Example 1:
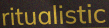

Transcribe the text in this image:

ritualistic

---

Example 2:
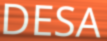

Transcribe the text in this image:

DESA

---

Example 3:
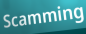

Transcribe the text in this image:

Scamming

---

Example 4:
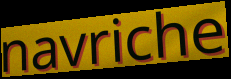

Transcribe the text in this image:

navriche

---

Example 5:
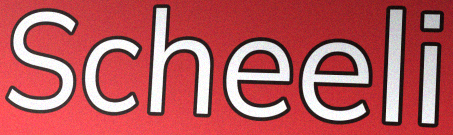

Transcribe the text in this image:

Scheeli